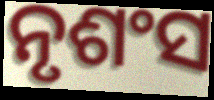
ନୃଶଂସ